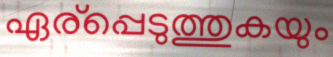
ഏര്പ്പെടുത്തുകയും